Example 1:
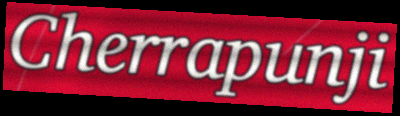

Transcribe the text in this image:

Cherrapunji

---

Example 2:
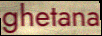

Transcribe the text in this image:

ghetana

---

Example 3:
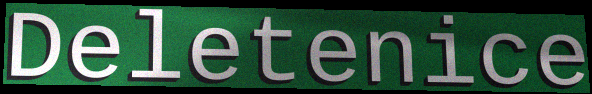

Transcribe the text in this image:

Deletenice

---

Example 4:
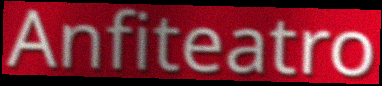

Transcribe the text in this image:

Anfiteatro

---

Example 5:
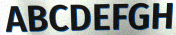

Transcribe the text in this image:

ABCDEFGH